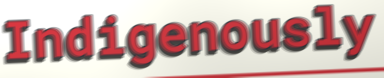
Indigenously